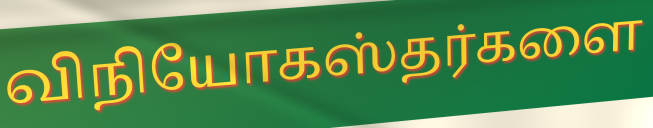
விநியோகஸ்தர்களை